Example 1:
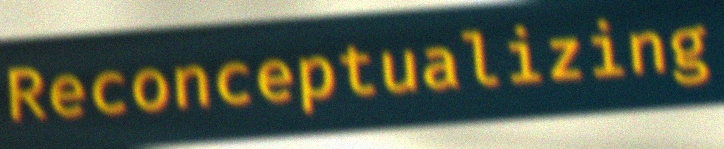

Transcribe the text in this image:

Reconceptualizing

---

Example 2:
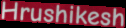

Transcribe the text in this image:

Hrushikesh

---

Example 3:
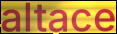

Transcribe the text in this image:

altace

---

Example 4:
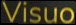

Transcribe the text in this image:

Visuo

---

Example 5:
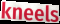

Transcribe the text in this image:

kneels